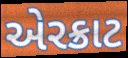
એરક્રાટ